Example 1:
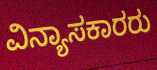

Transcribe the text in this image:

ವಿನ್ಯಾಸಕಾರರು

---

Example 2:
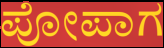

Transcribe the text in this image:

ಪೋಪಾಗ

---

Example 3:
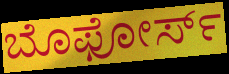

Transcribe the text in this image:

ಬೊಫೋರ್ಸ್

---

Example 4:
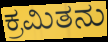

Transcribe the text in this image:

ಕ್ರಮಿತನು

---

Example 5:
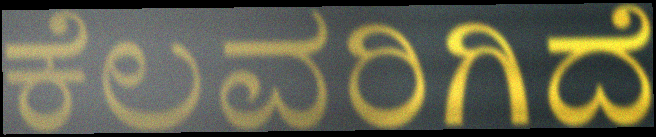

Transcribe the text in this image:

ಕೆಲವರಿಗಿದೆ